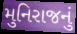
મુનિરાજનું